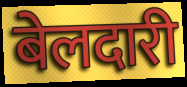
बेलदारी